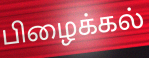
பிழைக்கல்